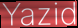
Yazid